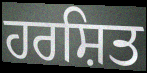
ਹਰਸ਼ਿਤ